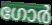
ഗോർ